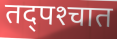
तद्पश्चात